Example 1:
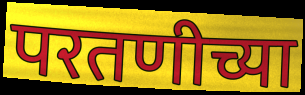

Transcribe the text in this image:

परतणीच्या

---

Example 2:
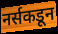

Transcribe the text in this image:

नर्सकडून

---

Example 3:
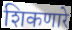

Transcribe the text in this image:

शिकणारे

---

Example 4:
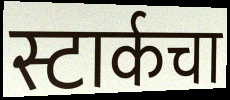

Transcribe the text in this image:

स्टार्कचा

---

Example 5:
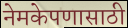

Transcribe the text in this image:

नेमकेपणासाठी